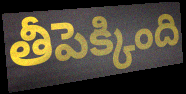
తీపెక్కింది